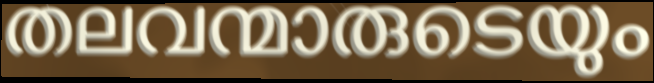
തലവന്മാരുടെയും